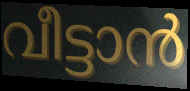
വീട്ടാൻ